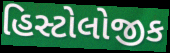
હિસ્ટોલોજીક